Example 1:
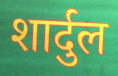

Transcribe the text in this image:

शार्दुल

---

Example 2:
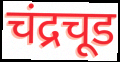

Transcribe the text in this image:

चंद्रचूड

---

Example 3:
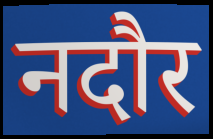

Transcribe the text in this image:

नदौर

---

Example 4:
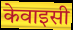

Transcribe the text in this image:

केवाइसी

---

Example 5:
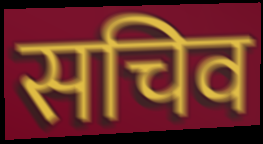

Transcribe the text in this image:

सचिव